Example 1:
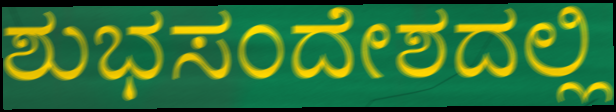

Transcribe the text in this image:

ಶುಭಸಂದೇಶದಲ್ಲಿ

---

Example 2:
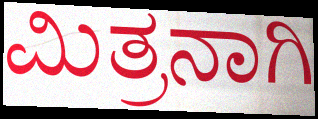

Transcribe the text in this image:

ಮಿತ್ರನಾಗಿ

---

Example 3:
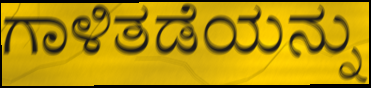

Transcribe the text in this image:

ಗಾಳಿತಡೆಯನ್ನು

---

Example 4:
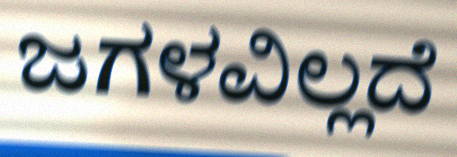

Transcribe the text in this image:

ಜಗಳವಿಲ್ಲದೆ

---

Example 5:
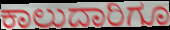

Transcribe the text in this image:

ಕಾಲುದಾರಿಗೂ